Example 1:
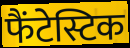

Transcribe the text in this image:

फैंटेस्टिक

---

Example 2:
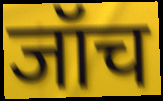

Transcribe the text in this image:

जॉच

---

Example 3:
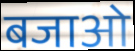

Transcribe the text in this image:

बजाओ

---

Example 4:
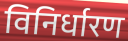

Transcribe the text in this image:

विनिर्धारण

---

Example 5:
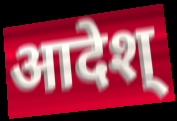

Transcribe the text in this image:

आदेश्